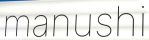
manushi